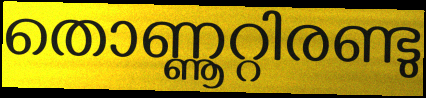
തൊണ്ണൂറ്റിരണ്ടു